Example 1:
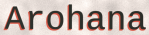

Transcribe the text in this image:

Arohana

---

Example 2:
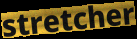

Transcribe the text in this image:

stretcher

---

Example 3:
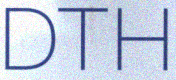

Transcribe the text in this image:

DTH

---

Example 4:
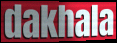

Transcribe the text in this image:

dakhala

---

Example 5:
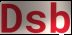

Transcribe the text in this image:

Dsb